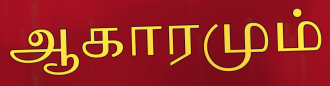
ஆகாரமும்